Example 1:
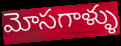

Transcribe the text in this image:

మోసగాళ్ళు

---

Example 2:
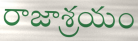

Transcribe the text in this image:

రాజాశ్రయం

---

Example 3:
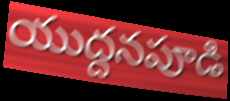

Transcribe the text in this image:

యుద్దనపూడి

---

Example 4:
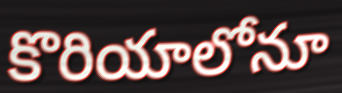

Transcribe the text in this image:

కొరియాలోనూ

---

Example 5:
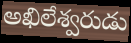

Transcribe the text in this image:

అఖిలేశ్వరుడు